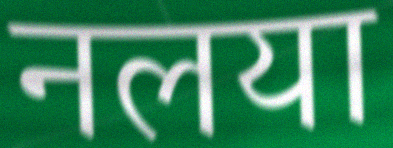
नलया